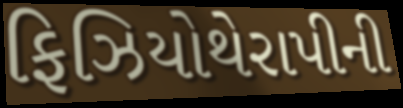
ફિઝિયોથેરાપીની